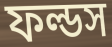
ফল্ডস